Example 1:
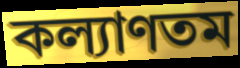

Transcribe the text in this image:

কল্যাণতম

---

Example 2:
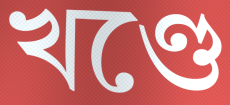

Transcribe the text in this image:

খণ্ডে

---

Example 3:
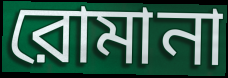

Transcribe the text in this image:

রোমানা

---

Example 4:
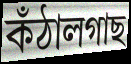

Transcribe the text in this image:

কঁঠালগাছ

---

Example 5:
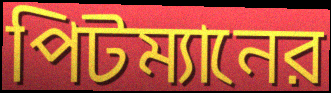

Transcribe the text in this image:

পিটম্যানের